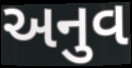
અનુવ